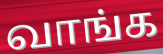
வாங்க